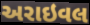
અરાઇવલ